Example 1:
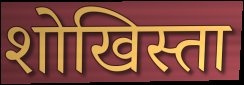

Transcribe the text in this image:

शोखिस्ता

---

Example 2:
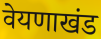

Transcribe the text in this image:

वेयणाखंड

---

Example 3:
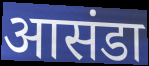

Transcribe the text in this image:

आसंडा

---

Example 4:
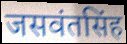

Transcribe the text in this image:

जसवंतसिंह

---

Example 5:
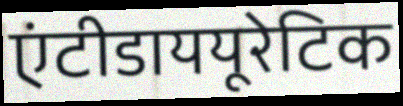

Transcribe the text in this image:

एंटीडाययूरेटिक